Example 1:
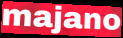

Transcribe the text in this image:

majano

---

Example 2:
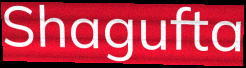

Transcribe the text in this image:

Shagufta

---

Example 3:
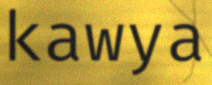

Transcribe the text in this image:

kawya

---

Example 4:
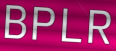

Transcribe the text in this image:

BPLR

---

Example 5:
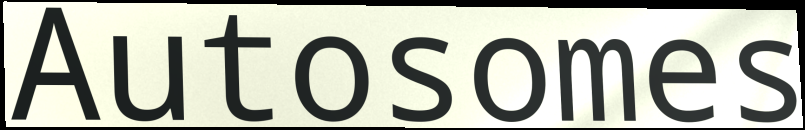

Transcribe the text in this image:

Autosomes